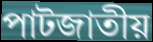
পাটজাতীয়